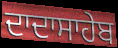
ਦਾਦਾਸਾਹੇਬ